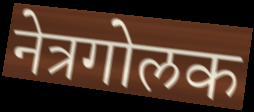
नेत्रगोलक